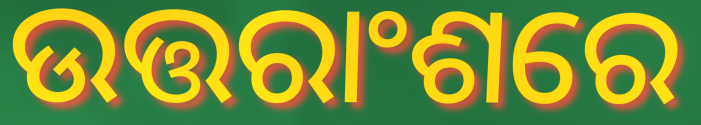
ଉତ୍ତରାଂଶରେ